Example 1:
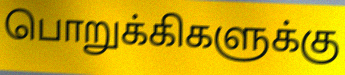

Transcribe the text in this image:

பொறுக்கிகளுக்கு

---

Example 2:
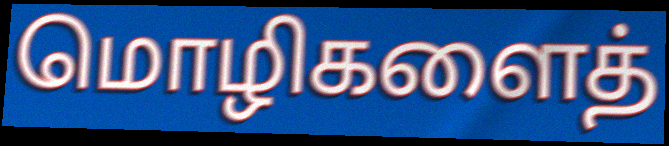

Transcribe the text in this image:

மொழிகளைத்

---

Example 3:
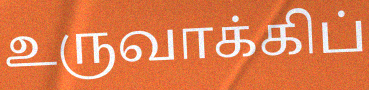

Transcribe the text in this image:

உருவாக்கிப்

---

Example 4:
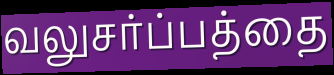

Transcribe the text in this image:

வலுசர்ப்பத்தை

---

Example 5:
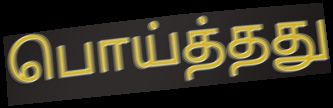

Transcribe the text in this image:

பொய்த்தது